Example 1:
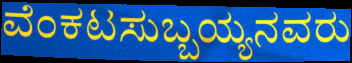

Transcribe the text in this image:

ವೆಂಕಟಸುಬ್ಬಯ್ಯನವರು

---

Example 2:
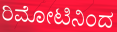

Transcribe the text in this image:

ರಿಮೋಟಿನಿಂದ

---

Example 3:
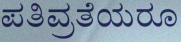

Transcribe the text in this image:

ಪತಿವ್ರತೆಯರೂ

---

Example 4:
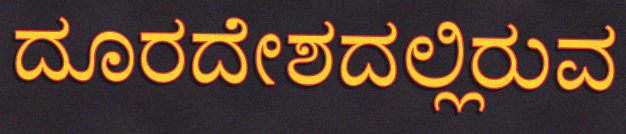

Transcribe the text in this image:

ದೂರದೇಶದಲ್ಲಿರುವ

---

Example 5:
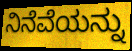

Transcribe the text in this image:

ನಿನೆವೆಯನ್ನು